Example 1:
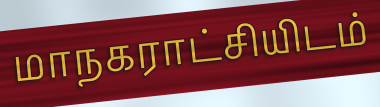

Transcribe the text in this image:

மாநகராட்சியிடம்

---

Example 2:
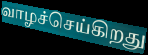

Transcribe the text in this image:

வாழச்செய்கிறது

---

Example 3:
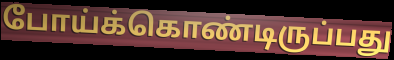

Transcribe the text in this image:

போய்க்கொண்டிருப்பது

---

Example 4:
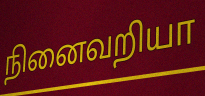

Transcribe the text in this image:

நினைவறியா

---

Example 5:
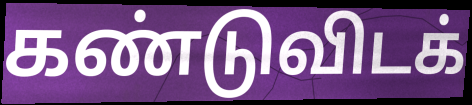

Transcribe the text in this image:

கண்டுவிடக்